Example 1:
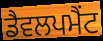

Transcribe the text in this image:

ਡੈਵਲਪਮੈਂਟ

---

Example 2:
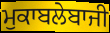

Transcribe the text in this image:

ਮੁਕਾਬਲੇਬਾਜੀ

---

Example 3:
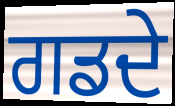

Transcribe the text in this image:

ਗਡਦੇ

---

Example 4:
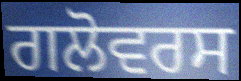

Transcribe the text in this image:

ਗਲੋਵਰਸ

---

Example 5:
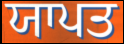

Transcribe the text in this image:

ਯਾਪਤ